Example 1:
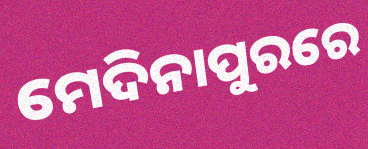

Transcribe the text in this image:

ମେଦିନାପୁରରେ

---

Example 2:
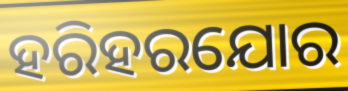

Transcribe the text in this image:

ହରିହରଯୋର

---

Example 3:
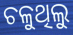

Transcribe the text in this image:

ଚଳୁଥିଲୁ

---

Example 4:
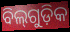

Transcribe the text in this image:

ବିଲ୍‌ଗୁଡ଼ିକ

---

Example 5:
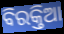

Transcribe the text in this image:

ବିରକ୍ତିଆ